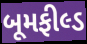
બૂમફીલ્ડ